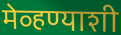
मेव्हण्याशी